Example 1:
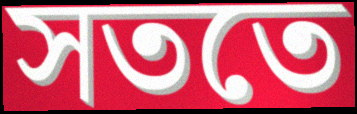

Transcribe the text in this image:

সততে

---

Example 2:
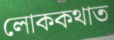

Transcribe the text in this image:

লোককথাত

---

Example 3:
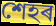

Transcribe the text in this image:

শেহৰ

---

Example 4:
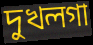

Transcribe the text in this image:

দুখলগা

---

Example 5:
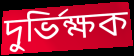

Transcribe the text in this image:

দুৰ্ভিক্ষক